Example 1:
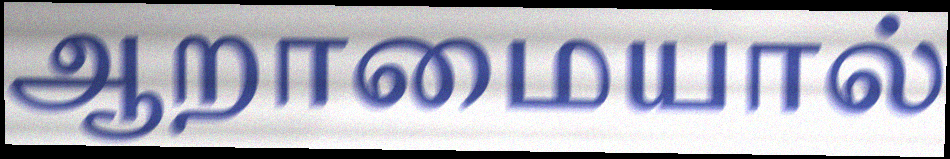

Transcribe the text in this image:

ஆறாமையால்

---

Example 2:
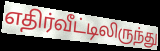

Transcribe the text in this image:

எதிர்வீட்டிலிருந்து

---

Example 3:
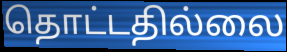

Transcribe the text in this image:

தொட்டதில்லை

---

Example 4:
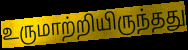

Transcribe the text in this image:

உருமாற்றியிருந்தது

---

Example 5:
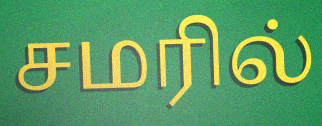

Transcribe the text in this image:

சமரில்